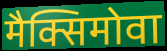
मैक्सिमोवा